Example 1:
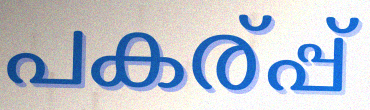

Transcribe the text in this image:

പകര്പ്പ്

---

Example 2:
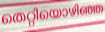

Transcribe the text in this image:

തെറ്റിയൊഴിഞ്ഞ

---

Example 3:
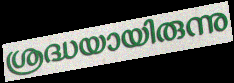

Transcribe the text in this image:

ശ്രദ്ധയായിരുന്നു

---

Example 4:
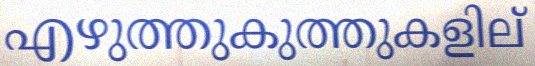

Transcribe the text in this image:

എഴുത്തുകുത്തുകളില്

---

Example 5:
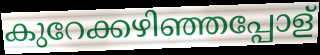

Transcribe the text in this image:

കുറേക്കഴിഞ്ഞപ്പോള്